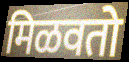
मिळवतो